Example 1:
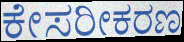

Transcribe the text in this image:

ಕೇಸರೀಕರಣ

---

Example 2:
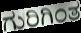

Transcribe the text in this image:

ಗುರಿಗಿಂತ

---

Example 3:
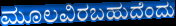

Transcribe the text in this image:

ಮೂಲವಿರಬಹುದೆಂದು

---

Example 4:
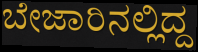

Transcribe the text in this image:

ಬೇಜಾರಿನಲ್ಲಿದ್ದ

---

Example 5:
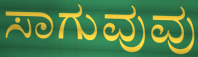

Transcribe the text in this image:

ಸಾಗುವುವು